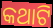
କଥାଟି